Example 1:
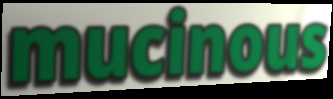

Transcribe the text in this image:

mucinous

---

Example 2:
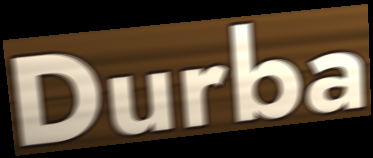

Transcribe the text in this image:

Durba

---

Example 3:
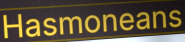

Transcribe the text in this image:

Hasmoneans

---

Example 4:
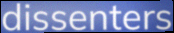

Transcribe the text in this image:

dissenters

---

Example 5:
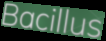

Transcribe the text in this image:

Bacillus